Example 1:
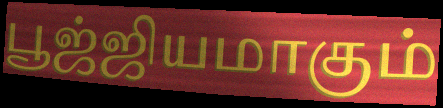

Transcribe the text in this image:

பூஜ்ஜியமாகும்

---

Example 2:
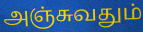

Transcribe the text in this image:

அஞ்சுவதும்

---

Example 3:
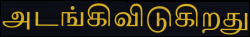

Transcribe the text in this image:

அடங்கிவிடுகிறது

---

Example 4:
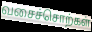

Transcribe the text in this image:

வசைச்சொற்கள்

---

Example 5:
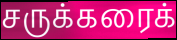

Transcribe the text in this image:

சருக்கரைக்